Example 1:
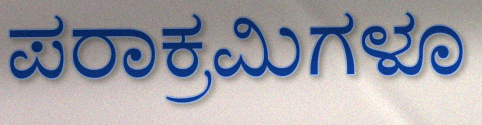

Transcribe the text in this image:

ಪರಾಕ್ರಮಿಗಳೂ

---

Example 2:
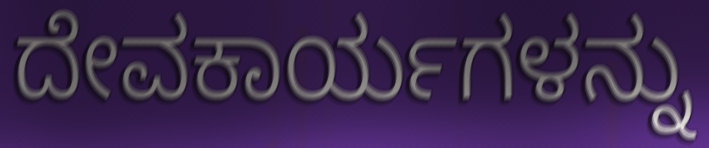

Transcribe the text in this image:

ದೇವಕಾರ್ಯಗಳನ್ನು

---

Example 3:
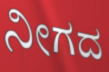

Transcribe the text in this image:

ನೀಗದ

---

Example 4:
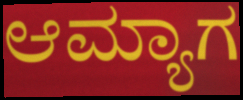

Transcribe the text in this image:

ಆಮ್ಯಾಗ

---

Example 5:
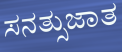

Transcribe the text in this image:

ಸನತ್ಸುಜಾತ